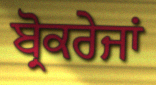
ਬ੍ਰੋਕਰੇਜਾਂ